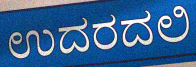
ಉದರದಲಿ